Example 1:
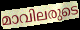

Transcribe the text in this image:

മാവിലരുടെ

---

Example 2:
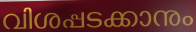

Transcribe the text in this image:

വിശപ്പടക്കാനും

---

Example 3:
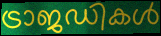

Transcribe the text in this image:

ട്രാജഡികൾ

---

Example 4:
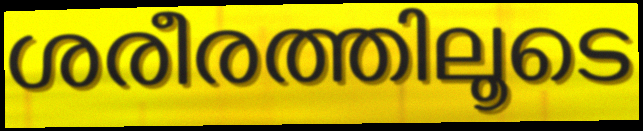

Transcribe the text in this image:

ശരീരത്തിലൂടെ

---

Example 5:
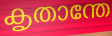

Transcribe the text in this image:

കൃതാന്തേ